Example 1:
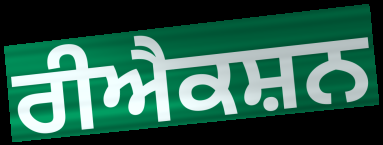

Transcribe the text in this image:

ਰੀਐਕਸ਼ਨ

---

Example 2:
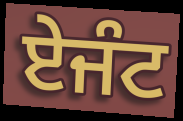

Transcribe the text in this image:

ਏਜੰਟ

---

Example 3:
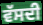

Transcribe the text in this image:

ਵੱਸਦੀ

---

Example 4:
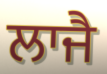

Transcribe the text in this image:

ਲਾਜੈ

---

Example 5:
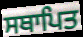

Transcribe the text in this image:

ਸਥਾਪਿਤ